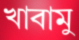
খাবামু